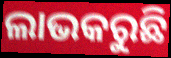
ଲାଭକରୁଛି